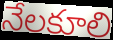
నేలకూలి